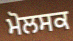
ਮੋਲਸਕ